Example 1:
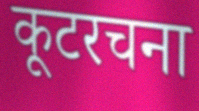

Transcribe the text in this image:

कूटरचना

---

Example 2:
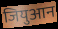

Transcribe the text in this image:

जियुआन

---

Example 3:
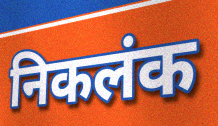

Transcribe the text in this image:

निकलंक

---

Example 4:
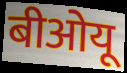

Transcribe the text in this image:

बीओयू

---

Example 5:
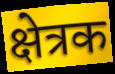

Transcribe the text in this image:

क्षेत्रक